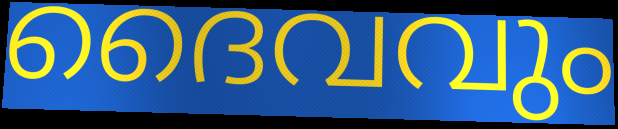
ദൈവവും